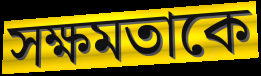
সক্ষমতাকে